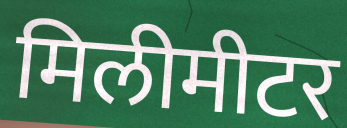
मिलीमीटर